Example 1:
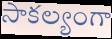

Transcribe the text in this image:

సాకల్యంగా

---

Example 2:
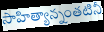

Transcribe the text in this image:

సాహిత్యాన్నంతటినీ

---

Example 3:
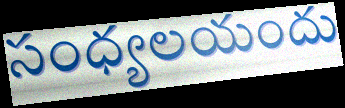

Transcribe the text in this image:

సంధ్యలయందు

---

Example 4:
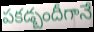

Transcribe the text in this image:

పకడ్బందీగానే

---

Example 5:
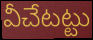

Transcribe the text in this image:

వీచేటట్టు